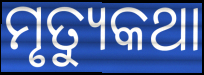
ମୃତ୍ୟୁକଥା